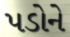
પડોને